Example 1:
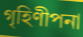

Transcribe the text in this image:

গৃহিণীপনা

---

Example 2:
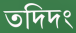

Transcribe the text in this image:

তদিদং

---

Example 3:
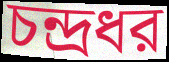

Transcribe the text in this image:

চন্দ্রধর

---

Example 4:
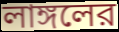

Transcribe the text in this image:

লাঙ্গলের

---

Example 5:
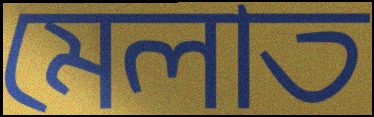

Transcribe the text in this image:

মেলাত